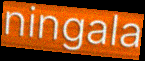
ningala